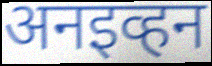
अनइव्हन